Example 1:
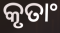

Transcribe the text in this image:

କୃତାଂ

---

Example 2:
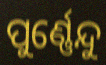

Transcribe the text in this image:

ପୁର୍ଣ୍ଣେନ୍ଦୁ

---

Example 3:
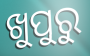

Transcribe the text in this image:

ଖୁପୁରୁ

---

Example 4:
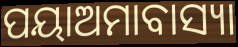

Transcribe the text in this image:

ପୟାଅମାବାସ୍ୟା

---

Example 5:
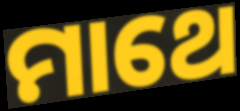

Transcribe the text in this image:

ମାଥେ